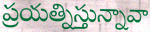
ప్రయత్నిస్తున్నావా